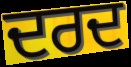
ਦਰਦ